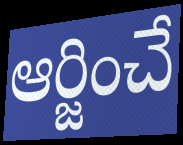
ఆర్జించే